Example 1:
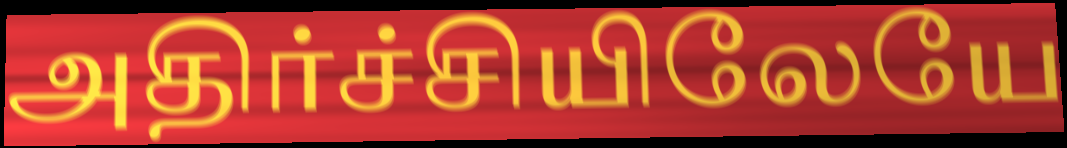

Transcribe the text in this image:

அதிர்ச்சியிலேயே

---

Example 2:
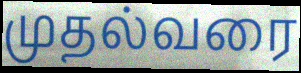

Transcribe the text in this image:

முதல்வரை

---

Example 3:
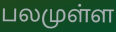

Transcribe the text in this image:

பலமுள்ள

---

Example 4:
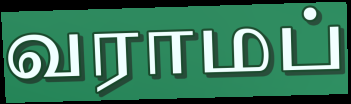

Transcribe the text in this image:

வராமப்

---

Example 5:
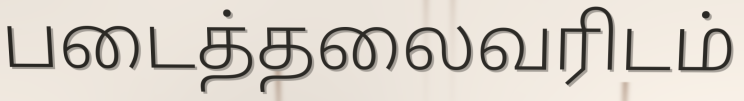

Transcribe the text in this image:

படைத்தலைவரிடம்